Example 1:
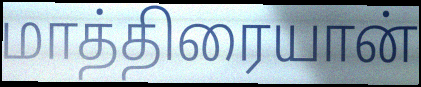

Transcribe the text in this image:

மாத்திரையான்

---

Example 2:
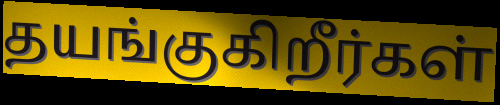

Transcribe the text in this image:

தயங்குகிறீர்கள்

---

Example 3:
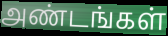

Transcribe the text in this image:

அண்டங்கள்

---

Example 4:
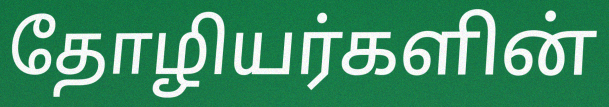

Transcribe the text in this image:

தோழியர்களின்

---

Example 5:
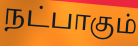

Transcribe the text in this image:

நட்பாகும்